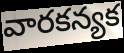
వారకన్యక